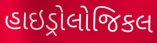
હાઇડ્રોલોજિકલ